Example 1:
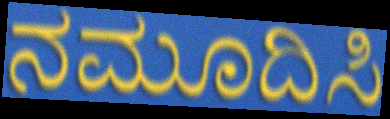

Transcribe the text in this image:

ನಮೂದಿಸಿ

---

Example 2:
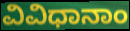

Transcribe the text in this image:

ವಿವಿಧಾನಾಂ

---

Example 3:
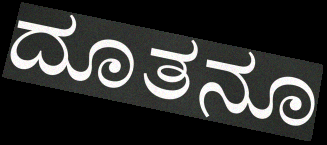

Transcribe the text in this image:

ದೂತನೂ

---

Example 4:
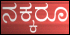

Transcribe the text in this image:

ನಕ್ಕರೂ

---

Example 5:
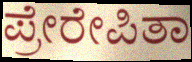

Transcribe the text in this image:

ಪ್ರೇರೇಪಿತಾ